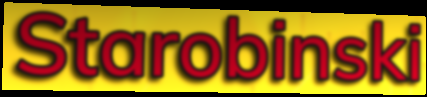
Starobinski